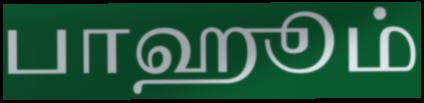
பாஹூம்